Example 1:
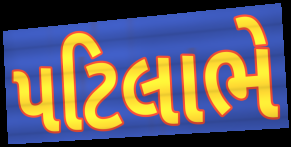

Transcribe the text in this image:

પટિલાભે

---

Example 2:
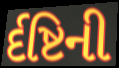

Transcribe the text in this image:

ર્દષ્ટિની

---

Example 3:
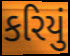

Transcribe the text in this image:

કરિયું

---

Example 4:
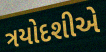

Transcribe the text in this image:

ત્રયોદશીએ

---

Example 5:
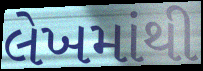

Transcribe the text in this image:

લેખમાંથી